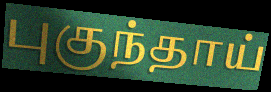
புகுந்தாய்